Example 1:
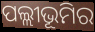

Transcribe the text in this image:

ପଲ୍ଲୀଭୂମିର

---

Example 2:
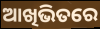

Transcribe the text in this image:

ଆଖିଭିତରେ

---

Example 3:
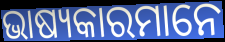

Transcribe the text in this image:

ଭାଷ୍ୟକାରମାନେ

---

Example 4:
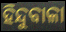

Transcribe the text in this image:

ହିନ୍ଦୁବାଳା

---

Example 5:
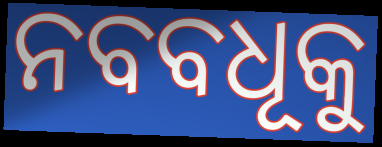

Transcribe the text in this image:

ନବବଧୂକୁ